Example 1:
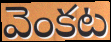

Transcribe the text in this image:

వెంకట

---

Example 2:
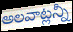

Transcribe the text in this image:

అలవాట్లన్నీ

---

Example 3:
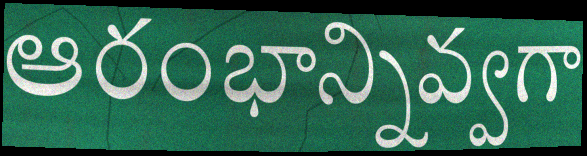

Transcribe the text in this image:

ఆరంభాన్నివ్వగా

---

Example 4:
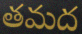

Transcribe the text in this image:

తమద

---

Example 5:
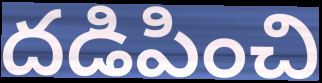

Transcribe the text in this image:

దడిపించి